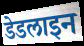
डेडलाइन